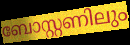
ബോസ്റ്റണിലും